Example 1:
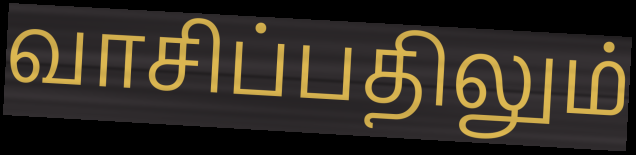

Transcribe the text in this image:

வாசிப்பதிலும்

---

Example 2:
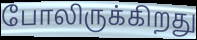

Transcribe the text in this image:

போலிருக்கிறது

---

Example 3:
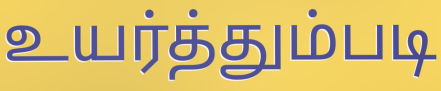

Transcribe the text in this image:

உயர்த்தும்படி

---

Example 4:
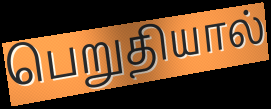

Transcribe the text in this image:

பெறுதியால்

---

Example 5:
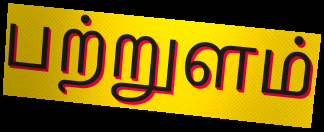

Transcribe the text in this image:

பற்றுளம்